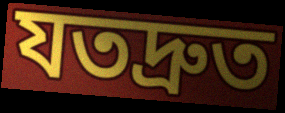
যতদ্রুত